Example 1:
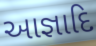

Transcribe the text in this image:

આજ્ઞાદિ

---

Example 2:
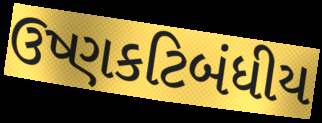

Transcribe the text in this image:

ઉષ્ણકટિબંધીય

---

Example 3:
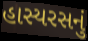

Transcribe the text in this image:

હાસ્યરસનું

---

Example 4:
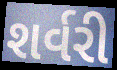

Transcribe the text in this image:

શર્વરી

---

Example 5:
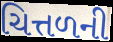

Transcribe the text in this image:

ચિત્તળની